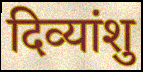
दिव्‍यांशु